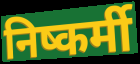
निष्कर्मी